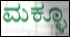
ಮಕ್ಳೂ